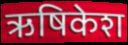
ऋषिकेश